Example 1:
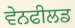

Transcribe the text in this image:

ਵੇਨਫੀਲਡ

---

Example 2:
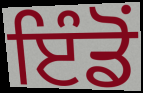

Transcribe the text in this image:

ਇੰਡੋਂ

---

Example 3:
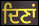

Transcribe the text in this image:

ਦਿਣਾਂ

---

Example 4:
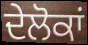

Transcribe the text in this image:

ਦੇਲੋਕਾਂ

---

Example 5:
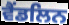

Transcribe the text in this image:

ਵੈਂਡਲਿਨ